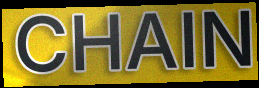
CHAIN